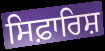
ਸਿਫ਼ਾਰਿਸ਼